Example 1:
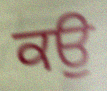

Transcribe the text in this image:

ਕਉੁ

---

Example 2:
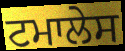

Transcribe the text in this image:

ਟਮਾਲੇਸ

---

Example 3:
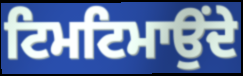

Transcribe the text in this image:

ਟਿਮਟਿਮਾਉਂਦੇ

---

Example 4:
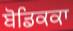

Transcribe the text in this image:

ਬੋਡਿਕਕਾ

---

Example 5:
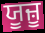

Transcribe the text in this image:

ਯੂਜ਼ੂ